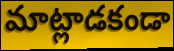
మాట్లాడకండా